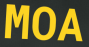
MOA